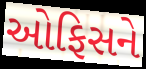
ઓફિસને